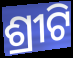
ଶ୍ରୀଟି